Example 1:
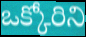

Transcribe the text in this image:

ఒక్కోరిని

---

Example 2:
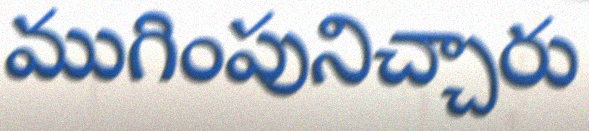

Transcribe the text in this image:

ముగింపునిచ్చారు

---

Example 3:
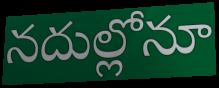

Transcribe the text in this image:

నదుల్లోనూ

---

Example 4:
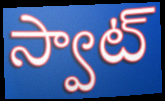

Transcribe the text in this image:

స్వాట్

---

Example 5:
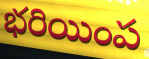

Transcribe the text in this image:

భరియింప